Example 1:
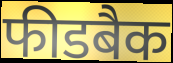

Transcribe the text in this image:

फीडबैक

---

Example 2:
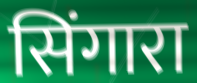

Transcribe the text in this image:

सिंगारा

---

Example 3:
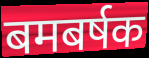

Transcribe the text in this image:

बमबर्षक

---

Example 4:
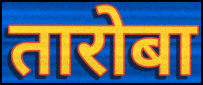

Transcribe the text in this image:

तारोबा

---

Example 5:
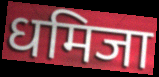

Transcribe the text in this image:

धमिजा